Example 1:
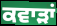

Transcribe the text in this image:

ਕਵਾੜਾਂ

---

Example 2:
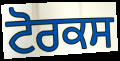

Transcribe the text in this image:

ਟੋਰਕਸ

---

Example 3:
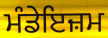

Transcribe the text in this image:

ਮੰਡੇਇਜ਼ਮ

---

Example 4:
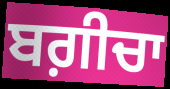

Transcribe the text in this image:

ਬਗ਼ੀਚਾ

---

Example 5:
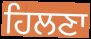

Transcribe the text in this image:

ਹਿਲਣਾ